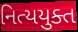
નિત્યયુક્ત